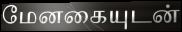
மேனகையுடன்